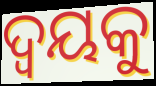
ଦ୍ୱୟକୁ